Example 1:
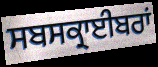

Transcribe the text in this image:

ਸਬਸਕ੍ਰਾਈਬਰਾਂ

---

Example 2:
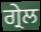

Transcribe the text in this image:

ਗ੍ਰੇਲ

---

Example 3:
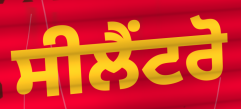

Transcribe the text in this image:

ਸੀਲੈਂਟਰੋ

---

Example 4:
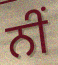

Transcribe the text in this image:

ਨੀਂ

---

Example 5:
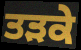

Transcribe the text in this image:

ਤੜਕੇ